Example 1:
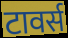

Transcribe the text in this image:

टावर्स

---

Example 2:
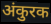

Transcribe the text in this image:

अंकुरक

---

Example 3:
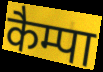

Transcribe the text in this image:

कैम्पा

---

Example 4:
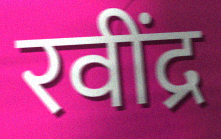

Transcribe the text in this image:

रवींद्र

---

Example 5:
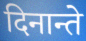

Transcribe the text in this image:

दिनान्ते